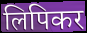
लिपिकर